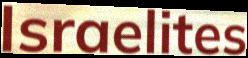
Israelites